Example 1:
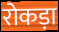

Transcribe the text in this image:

रोकड़ा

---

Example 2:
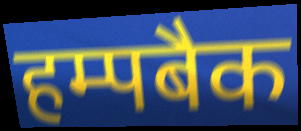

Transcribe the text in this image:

हम्पबैक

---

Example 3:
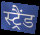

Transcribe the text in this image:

स्ट्रैंड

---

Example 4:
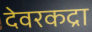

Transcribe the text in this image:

देवरकद्रा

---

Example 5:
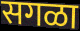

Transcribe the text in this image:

सगळा